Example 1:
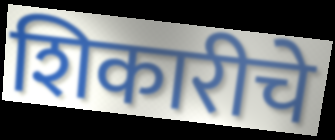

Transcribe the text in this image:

शिकारीचे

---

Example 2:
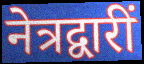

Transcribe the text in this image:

नेत्रद्वारीं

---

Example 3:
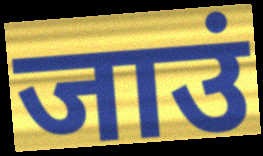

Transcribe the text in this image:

जाउं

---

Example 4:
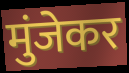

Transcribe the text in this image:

मुंजेकर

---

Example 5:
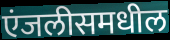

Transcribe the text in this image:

एंजलीसमधील